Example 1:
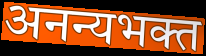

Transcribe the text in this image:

अनन्यभक्त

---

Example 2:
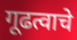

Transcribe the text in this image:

गूढत्वाचे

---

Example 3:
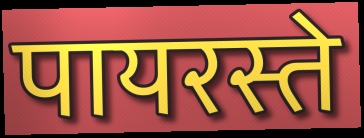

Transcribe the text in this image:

पायरस्ते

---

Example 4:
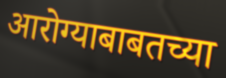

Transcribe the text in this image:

आरोग्याबाबतच्या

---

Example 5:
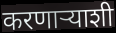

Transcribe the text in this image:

करणाऱ्याशी